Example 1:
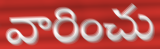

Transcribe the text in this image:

వారించు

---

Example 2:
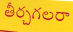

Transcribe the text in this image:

తీర్చగలరా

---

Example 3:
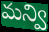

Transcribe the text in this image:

మన్వి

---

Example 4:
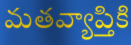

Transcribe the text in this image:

మతవ్యాప్తికి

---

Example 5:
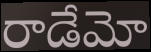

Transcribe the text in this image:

రాడేమో